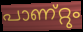
പാണ്റ്റും